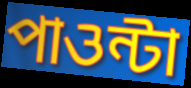
পাওন্টা